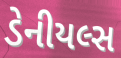
ડેનીયલ્સ